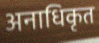
अनाधिकृत